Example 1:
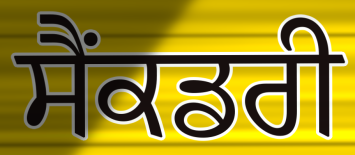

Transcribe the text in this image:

ਸੈਂਕਡਰੀ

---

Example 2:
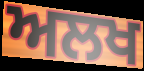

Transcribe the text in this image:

ਅਲਖ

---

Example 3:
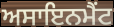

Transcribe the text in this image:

ਅਸਾਇਨਮੈਂਟ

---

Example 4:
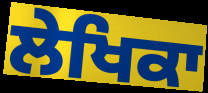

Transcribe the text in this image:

ਲੇਖਿਕਾ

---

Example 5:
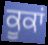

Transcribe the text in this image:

ਕੂਕਾਂ